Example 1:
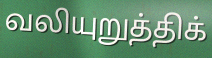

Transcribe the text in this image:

வலியுறுத்திக்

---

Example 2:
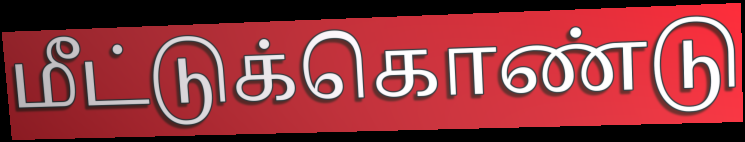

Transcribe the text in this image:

மீட்டுக்கொண்டு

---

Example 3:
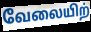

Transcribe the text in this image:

வேலையிற்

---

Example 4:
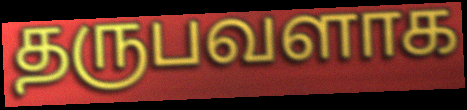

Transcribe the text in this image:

தருபவளாக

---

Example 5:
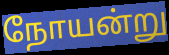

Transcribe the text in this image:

நோயன்று